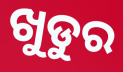
ଖୁଡୁର